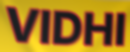
VIDHI